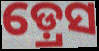
ଡ଼୍ରେସ